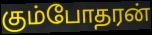
கும்போதரன்